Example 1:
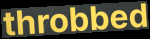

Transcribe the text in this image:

throbbed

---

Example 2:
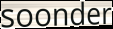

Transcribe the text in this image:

soonder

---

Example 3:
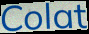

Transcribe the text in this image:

Colat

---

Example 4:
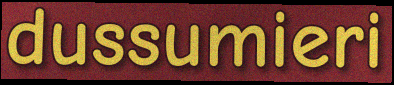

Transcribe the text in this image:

dussumieri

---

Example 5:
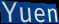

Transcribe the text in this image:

Yuen